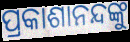
ପ୍ରକାଶାନନ୍ଦଙ୍କୁ